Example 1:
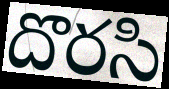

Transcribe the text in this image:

దొరసి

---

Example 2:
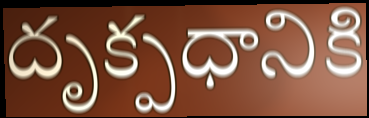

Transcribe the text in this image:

దృక్పధానికి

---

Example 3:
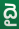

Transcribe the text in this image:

దై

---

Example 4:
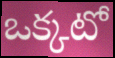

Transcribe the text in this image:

ఒక్కటో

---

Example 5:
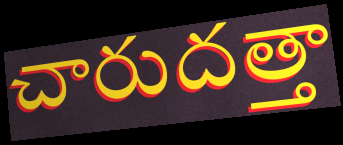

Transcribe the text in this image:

చారుదత్తా